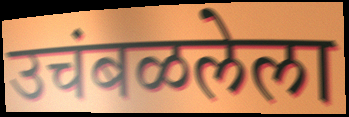
उचंबळलेला